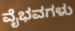
ವೈಭವಗಳು